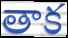
తాక